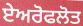
ਏਅਰੋਫਲੋਤ